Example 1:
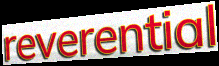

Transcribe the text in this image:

reverential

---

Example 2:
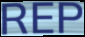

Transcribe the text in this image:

REP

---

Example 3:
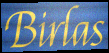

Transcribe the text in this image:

Birlas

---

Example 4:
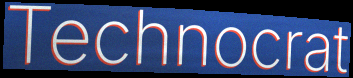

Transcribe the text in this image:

Technocrat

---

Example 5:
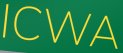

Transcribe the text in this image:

ICWA